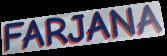
FARJANA